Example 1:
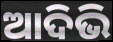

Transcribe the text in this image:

ଆଦିଭି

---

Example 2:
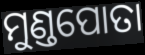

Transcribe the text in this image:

ମୁଣ୍ଡପୋତା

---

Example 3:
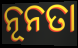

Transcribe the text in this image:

ନୂନତା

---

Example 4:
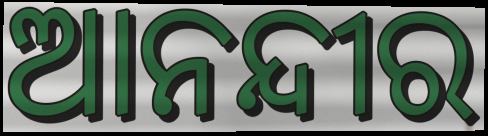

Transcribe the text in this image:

ଆନନ୍ଦୀର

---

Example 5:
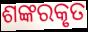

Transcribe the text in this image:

ଶଙ୍କରକୃତ